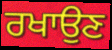
ਰਖਾਉਣ